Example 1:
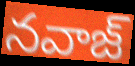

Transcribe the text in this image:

నవాజ్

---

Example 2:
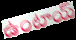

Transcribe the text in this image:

ఉంటాయ్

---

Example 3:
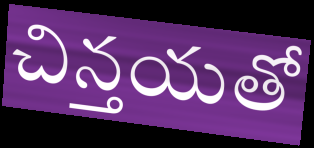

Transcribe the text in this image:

చిన్తయతో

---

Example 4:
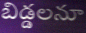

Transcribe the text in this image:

బిడ్డలనూ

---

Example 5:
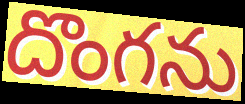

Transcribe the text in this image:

దొంగను